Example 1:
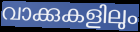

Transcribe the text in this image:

വാക്കുകളിലും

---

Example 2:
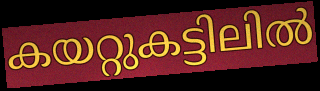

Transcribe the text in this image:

കയറ്റുകട്ടിലിൽ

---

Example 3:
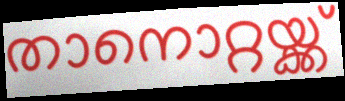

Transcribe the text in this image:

താനൊറ്റയ്ക്ക്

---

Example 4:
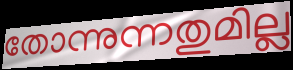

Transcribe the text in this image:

തോന്നുന്നതുമില്ല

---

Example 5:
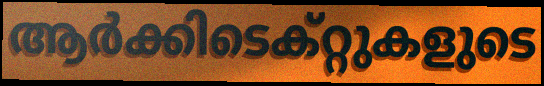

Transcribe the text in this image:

ആർക്കിടെക്റ്റുകളുടെ